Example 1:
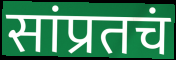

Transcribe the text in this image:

सांप्रतचं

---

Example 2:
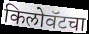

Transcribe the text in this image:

किलोवॅटचा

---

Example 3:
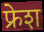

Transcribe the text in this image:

फ्रेश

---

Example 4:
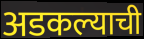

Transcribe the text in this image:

अडकल्याची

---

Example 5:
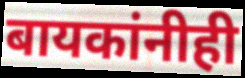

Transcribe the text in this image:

बायकांनीही